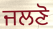
ਜਲਣੋ